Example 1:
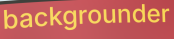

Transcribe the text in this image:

backgrounder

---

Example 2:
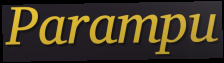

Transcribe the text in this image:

Parampu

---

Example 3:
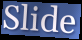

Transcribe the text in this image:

Slide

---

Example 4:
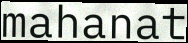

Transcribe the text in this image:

mahanat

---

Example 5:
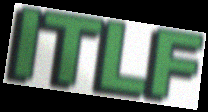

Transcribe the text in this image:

ITLF